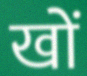
खों